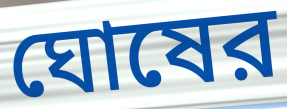
ঘোষের